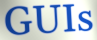
GUIs